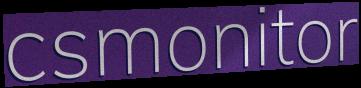
csmonitor